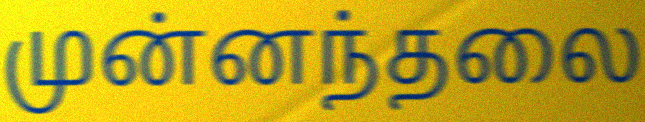
முன்னந்தலை